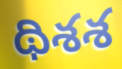
థిశశ